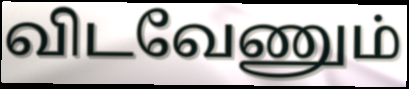
விடவேணும்